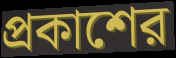
প্রকাশের